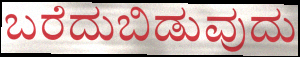
ಬರೆದುಬಿಡುವುದು